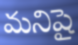
మనిషై